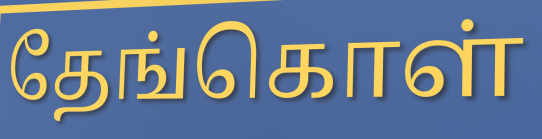
தேங்கொள்